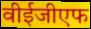
वीईजीएफ